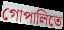
গোপালিতে